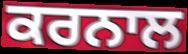
ਕਰਨਾਲ